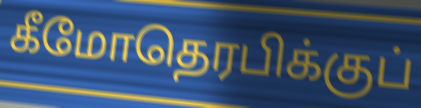
கீமோதெரபிக்குப்